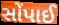
સોંપાઈ